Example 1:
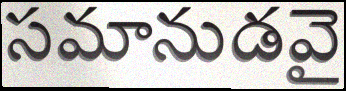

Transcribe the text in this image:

సమానుడవై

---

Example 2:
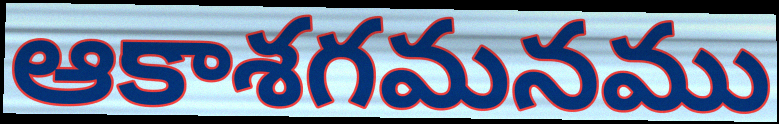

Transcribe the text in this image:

ఆకాశగమనము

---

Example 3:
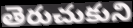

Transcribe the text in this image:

తెరుచుకుని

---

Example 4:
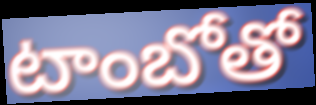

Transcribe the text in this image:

టాంబోతో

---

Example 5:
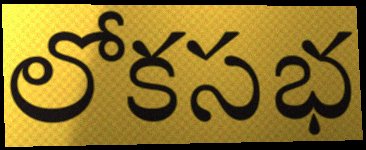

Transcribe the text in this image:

లోకసభ